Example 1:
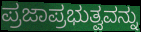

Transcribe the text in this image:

ಪ್ರಜಾಪ್ರಭುತ್ವವನ್ನು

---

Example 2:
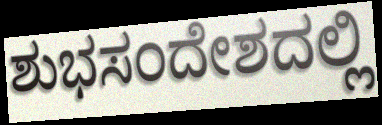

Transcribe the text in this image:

ಶುಭಸಂದೇಶದಲ್ಲಿ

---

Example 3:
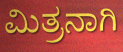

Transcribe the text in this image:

ಮಿತ್ರನಾಗಿ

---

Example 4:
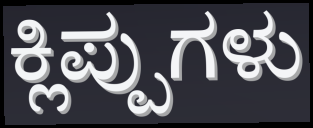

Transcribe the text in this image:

ಕ್ಲಿಪ್ಪುಗಳು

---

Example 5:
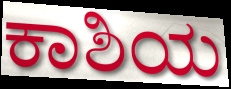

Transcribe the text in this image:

ಕಾಶಿಯ